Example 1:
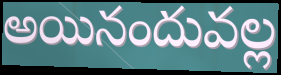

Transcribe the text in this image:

అయినందువల్ల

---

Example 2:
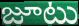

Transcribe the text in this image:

జూటు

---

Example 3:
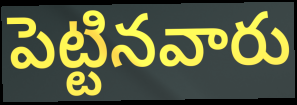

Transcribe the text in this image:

పెట్టినవారు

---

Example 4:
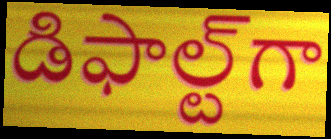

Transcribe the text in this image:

డిఫాల్ట్‌గా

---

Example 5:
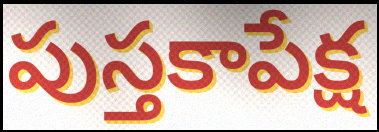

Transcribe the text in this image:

పుస్తకాపేక్ష